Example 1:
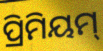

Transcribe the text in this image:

ପ୍ରିମିୟମ୍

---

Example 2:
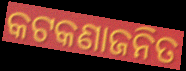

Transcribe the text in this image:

କଟକଣାଜନିତ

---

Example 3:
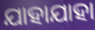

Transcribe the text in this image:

ଯାହାଯାହା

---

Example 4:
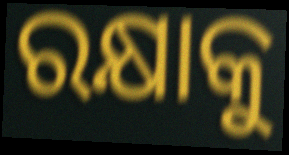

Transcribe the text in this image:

ରକ୍ଷାକୁ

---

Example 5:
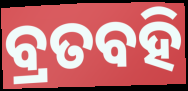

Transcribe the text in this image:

ବ୍ରତବହି